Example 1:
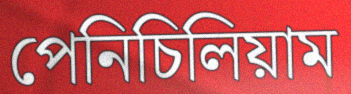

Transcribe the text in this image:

পেনিচিলিয়াম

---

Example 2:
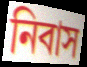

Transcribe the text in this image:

নিবাস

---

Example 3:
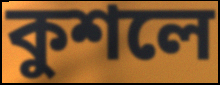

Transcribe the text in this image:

কুশলে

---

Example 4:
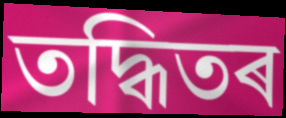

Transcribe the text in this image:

তদ্ধিতৰ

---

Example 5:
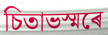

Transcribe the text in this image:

চিতাভস্মৰে